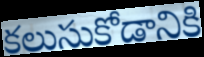
కలుసుకోడానికి